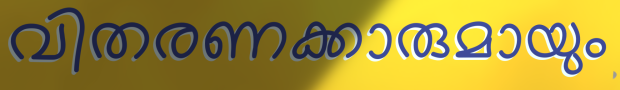
വിതരണക്കാരുമായും